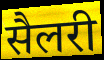
सैलरी